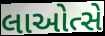
લાઓત્સે